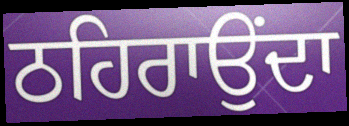
ਠਹਿਰਾਉਂਦਾ